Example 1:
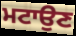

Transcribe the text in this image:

ਮਟਾਉਣ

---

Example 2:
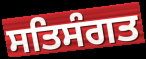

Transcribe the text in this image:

ਸਤਿਸੰਗਤ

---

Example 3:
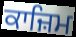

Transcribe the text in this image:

ਕਾਜ਼ਿਮ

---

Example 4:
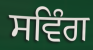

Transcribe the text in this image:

ਸਵਿੰਗ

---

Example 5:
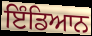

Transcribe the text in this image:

ਇੰਡਿਆਨ